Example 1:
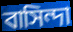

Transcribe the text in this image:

বাসিন্দা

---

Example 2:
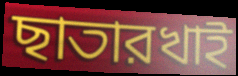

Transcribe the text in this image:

ছাতারখাই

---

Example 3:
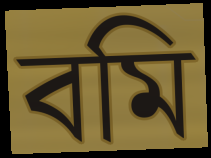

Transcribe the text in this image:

বমি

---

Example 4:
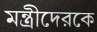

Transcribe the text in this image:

মন্ত্রীদেরকে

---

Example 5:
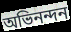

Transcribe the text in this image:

অভিনন্দন